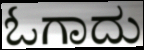
ಓಗಾದು